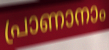
പ്രാണാനാം